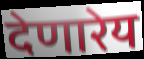
देणारेय